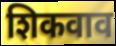
शिकवाव